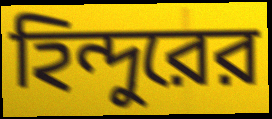
হিন্দুরের